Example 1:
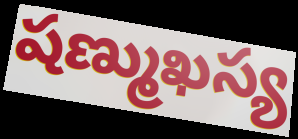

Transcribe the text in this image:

షణ్ముఖస్య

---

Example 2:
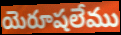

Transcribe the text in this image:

యెరూషలేము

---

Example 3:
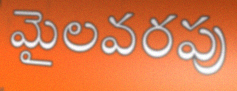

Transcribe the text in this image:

మైలవరపు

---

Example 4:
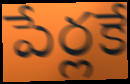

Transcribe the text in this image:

పేర్లకే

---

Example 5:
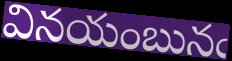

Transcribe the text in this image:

వినయంబునఁ